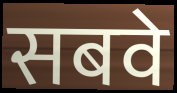
सबवे